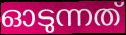
ഓടുന്നത്